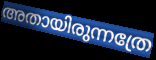
അതായിരുന്നത്രേ